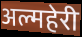
अल्महेरी